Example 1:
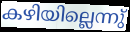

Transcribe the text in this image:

കഴിയില്ലെന്നു്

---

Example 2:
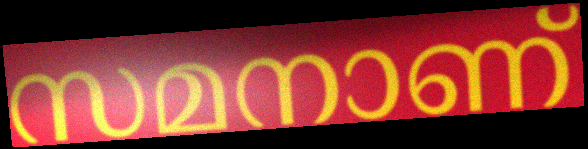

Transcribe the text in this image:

സമനാണ്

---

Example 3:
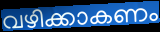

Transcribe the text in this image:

വഴിക്കാകണം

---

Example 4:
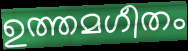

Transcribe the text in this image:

ഉത്തമഗീതം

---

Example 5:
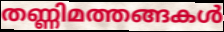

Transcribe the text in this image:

തണ്ണിമത്തങ്ങകൾ